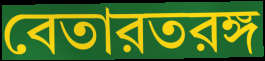
বেতারতরঙ্গ